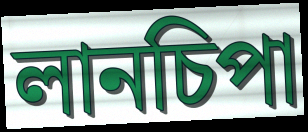
লানচিপা